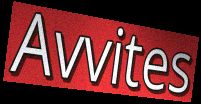
Avvites